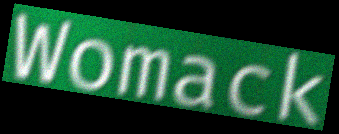
Womack